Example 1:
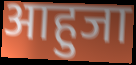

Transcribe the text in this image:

आहुजा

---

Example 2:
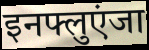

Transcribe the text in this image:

इनफ्लुएंजा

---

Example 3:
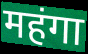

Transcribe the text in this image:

महंगा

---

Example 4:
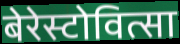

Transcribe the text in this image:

बेरेस्टोवित्सा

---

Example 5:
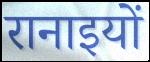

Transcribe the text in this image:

रानाइयों